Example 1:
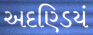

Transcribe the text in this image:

અદણ્ડિયં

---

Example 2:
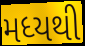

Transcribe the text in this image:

મધ્યથી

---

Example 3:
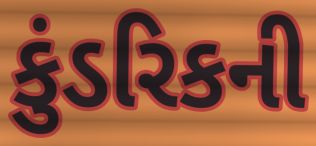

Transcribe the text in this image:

કુંડરિકની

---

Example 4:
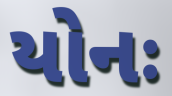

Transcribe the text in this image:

યોનઃ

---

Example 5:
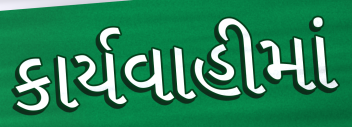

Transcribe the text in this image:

કાર્યવાહીમાં